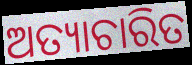
ଅତ୍ୟାଚାରିତ